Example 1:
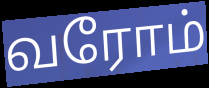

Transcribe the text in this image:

வரோம்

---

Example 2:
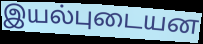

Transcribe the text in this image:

இயல்புடையன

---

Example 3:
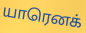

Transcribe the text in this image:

யாரெனக்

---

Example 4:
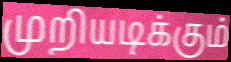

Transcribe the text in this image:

முறியடிக்கும்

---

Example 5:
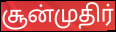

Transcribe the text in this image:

சூன்முதிர்